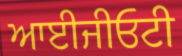
ਆਈਜੀਓਟੀ